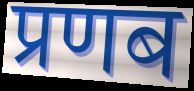
प्रणब